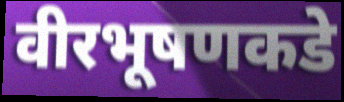
वीरभूषणकडे